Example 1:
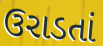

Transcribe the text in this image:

ઉરાડતાં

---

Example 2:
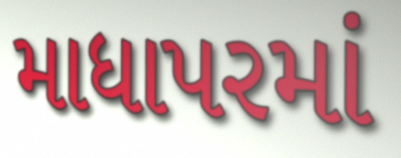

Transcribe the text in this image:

માધાપરમાં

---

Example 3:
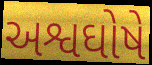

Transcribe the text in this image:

અશ્વઘોષે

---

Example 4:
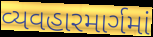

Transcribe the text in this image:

વ્યવહારમાર્ગમાં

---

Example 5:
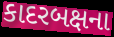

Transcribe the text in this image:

કાદરબક્ષના